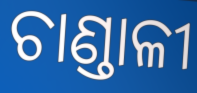
ଚାଣ୍ଡାଳୀ